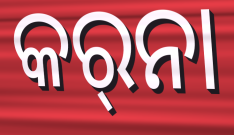
କର୍‌ନା